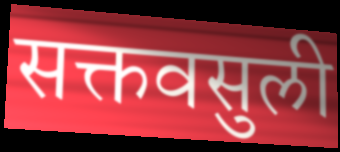
सक्तवसुली